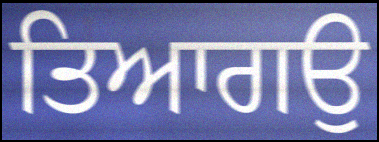
ਤਿਆਗਉ